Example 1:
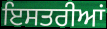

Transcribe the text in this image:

ਇਸਤਰੀਆਂ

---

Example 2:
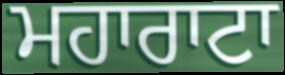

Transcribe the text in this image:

ਮਹਾਰਾਟਾ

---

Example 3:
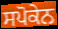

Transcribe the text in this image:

ਸਪੋਕੇਨ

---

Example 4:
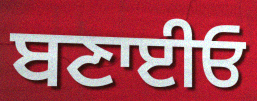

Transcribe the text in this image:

ਬਣਾਈਓ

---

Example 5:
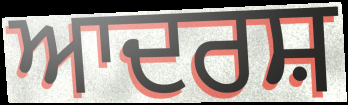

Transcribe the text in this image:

ਆਦਰਸ਼